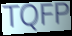
TQFP